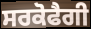
ਸਰਕੋਫੈਗੀ